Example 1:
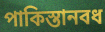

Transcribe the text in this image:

পাকিস্তানবধ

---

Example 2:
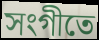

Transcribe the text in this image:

সংগীতে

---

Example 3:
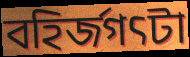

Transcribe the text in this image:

বহির্জগৎটা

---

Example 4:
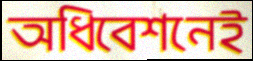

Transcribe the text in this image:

অধিবেশনেই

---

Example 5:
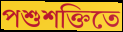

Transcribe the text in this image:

পশুশক্তিতে